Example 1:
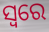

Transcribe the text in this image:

ସ୍ବରେ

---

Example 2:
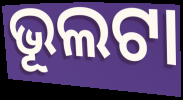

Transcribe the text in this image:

ଭୂଲଟା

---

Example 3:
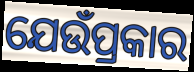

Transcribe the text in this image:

ଯେଉଁପ୍ରକାର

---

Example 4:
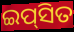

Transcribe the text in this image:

ଇପ୍‍ସିତ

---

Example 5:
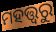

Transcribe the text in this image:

ମହତ୍ତ୍ୱରୁ